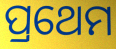
ପ୍ରଥେମ